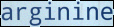
arginine